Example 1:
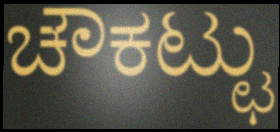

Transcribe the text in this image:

ಚೌಕಟ್ಟು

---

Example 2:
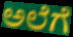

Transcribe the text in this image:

ಅಲೆಗೆ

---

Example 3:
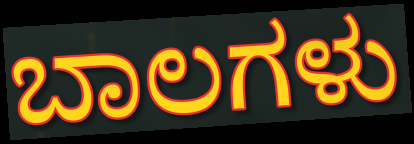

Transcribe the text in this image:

ಬಾಲಗಳು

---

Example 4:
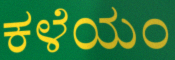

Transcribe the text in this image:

ಕಳೆಯಂ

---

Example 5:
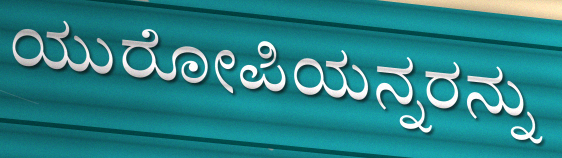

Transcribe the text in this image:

ಯುರೋಪಿಯನ್ನರನ್ನು